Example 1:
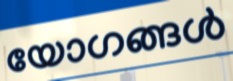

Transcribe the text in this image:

യോഗങ്ങൾ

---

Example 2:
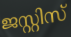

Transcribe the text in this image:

ജസ്റ്റിസ്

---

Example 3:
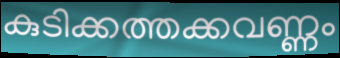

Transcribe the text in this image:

കുടിക്കത്തക്കവണ്ണം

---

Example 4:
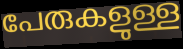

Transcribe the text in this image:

പേരുകളുള്ള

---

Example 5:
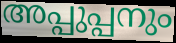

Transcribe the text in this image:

അപ്പുപ്പനും